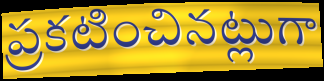
ప్రకటించినట్లుగా